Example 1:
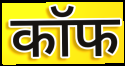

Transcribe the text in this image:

कॉफ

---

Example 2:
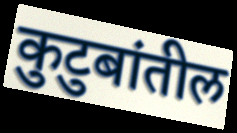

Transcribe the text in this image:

कुटुबांतील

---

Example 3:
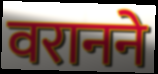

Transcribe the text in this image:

वरानने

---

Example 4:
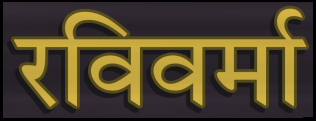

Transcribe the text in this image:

रविवर्मा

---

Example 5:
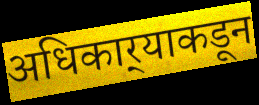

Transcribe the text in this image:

अधिकार्याकडून